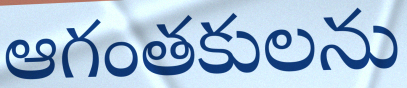
ఆగంతకులను